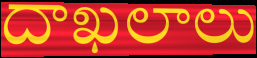
దాఖలాలు